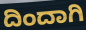
ದಿಂದಾಗಿ